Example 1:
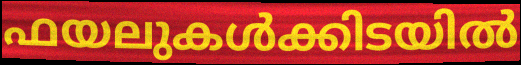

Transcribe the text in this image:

ഫയലുകൾക്കിടയിൽ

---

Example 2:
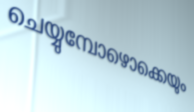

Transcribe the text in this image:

ചെയ്യുമ്പോഴൊക്കെയും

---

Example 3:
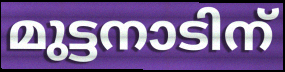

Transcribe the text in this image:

മുട്ടനാടിന്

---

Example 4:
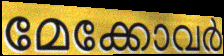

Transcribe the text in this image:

മേക്കോവർ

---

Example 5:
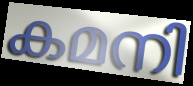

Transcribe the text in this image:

കമനി